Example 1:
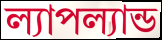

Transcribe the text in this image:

ল্যাপল্যান্ড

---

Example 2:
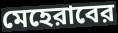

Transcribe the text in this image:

মেহেরাবের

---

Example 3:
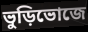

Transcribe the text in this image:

ভুড়িভোজে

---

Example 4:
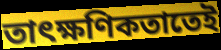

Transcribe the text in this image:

তাৎক্ষণিকতাতেই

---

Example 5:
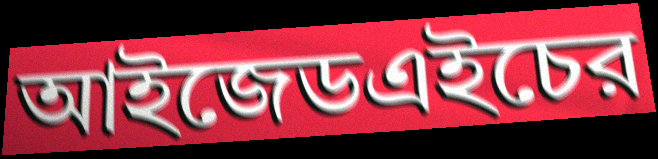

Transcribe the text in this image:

আইজেডএইচের